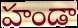
హండా